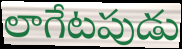
లాగేటపుడు